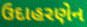
ઉદાહરણેન